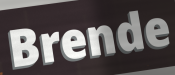
Brende